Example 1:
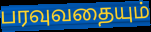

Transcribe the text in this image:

பரவுவதையும்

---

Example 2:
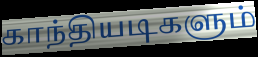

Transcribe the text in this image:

காந்தியடிகளும்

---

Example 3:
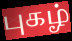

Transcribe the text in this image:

புகழ்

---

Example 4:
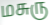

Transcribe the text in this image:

மசுரு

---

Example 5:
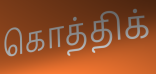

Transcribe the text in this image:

கொத்திக்